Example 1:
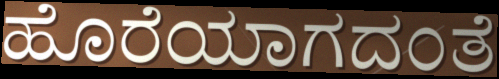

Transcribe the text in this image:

ಹೊರೆಯಾಗದಂತೆ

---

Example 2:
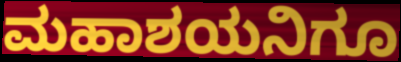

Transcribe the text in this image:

ಮಹಾಶಯನಿಗೂ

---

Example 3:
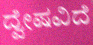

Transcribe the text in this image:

ದ್ವೇಷವಿದೆ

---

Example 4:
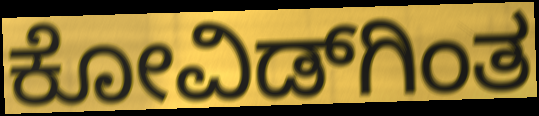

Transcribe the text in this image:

ಕೋವಿಡ್‌ಗಿಂತ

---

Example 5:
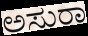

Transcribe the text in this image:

ಅಸುರಾ